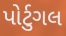
પોર્ટુગલ